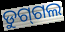
ଡୁଗ୍‌ଗଲ